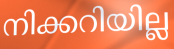
നിക്കറിയില്ല